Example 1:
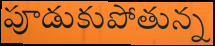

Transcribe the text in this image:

పూడుకుపోతున్న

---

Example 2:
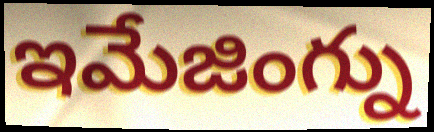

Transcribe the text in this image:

ఇమేజింగ్ను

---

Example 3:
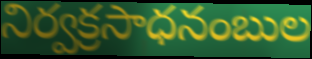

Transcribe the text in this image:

నిర్వక్రసాధనంబుల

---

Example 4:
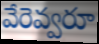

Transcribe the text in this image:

వేరెవ్వరూ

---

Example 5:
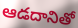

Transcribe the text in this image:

ఆడదానితో